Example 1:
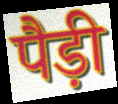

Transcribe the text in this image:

पैड़ी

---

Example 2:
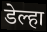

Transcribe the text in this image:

डेल्हा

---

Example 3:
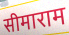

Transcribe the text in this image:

सीमाराम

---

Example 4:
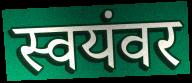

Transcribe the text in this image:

स्वयंवर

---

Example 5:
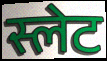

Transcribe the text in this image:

स्लेट